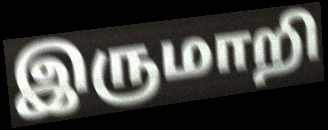
இருமாறி